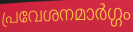
പ്രവേശനമാർഗ്ഗം